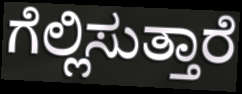
ಗೆಲ್ಲಿಸುತ್ತಾರೆ